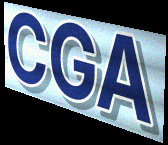
CGA